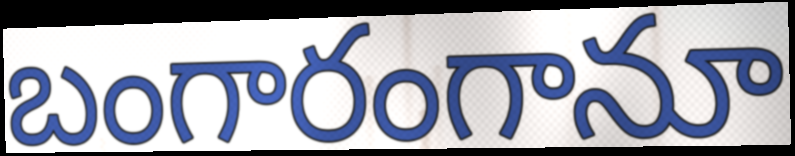
బంగారంగానూ